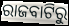
ରାଜବାଟିରୁ